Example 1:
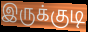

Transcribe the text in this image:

இருக்குடி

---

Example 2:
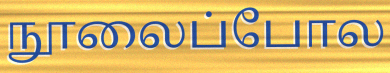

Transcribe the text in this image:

நூலைப்போல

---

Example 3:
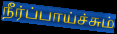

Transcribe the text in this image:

நீர்ப்பாய்ச்சும்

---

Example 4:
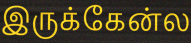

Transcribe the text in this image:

இருக்கேன்ல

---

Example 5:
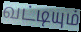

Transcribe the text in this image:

வட்டியும்